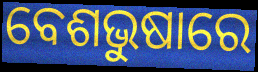
ବେଶଭୁଷାରେ